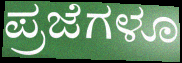
ಪ್ರಜೆಗಳೂ